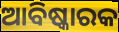
ଆବିଷ୍କାରକ